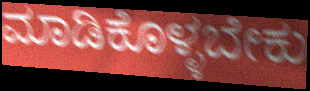
ಮಾಡಿಕೊಳ್ಳಬೇಕು